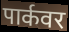
पार्कवर